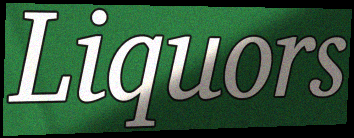
Liquors